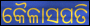
କୈଳାସପତି